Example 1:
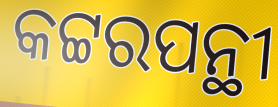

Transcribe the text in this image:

କଟ୍ଟରପନ୍ଥୀ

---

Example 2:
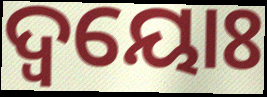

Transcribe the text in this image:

ଦ୍ବୟୋଃ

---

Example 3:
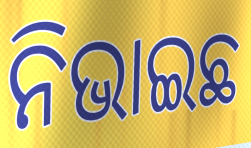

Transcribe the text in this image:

ନିଭାଇଛ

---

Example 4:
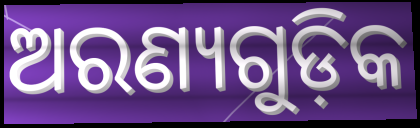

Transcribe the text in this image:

ଅରଣ୍ୟଗୁଡ଼ିକ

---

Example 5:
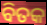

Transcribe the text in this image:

ବିତକ